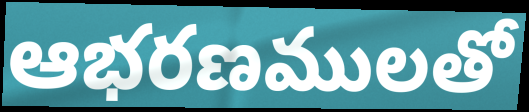
ఆభరణములతో